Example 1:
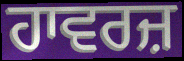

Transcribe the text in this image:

ਹਾਵਰਜ਼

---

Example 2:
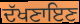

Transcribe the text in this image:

ਦੱਖਣਾਇਣ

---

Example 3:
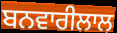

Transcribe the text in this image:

ਬਨਵਾਰੀਲਾਲ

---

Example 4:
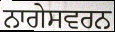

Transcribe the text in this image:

ਨਾਗੇਸਵਰਨ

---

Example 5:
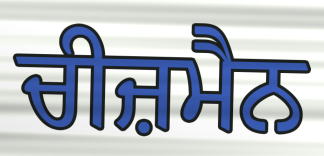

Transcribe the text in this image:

ਚੀਜ਼ਮੈਨ